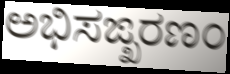
ಅಭಿಸಙ್ಖರಣಂ